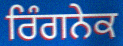
ਰਿੰਗਨੇਕ